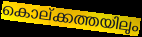
കൊല്ക്കത്തയിലും